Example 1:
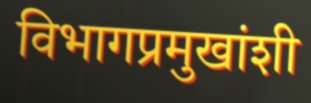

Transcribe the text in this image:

विभागप्रमुखांशी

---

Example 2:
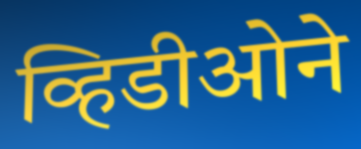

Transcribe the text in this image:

व्हिडीओने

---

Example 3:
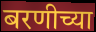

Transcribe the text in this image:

बरणीच्या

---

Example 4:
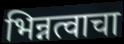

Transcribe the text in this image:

भिन्नत्वाचा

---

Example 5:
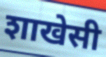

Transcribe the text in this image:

शाखेसी